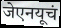
जेएनयूचं